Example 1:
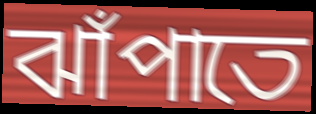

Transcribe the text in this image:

ঝাঁপাতে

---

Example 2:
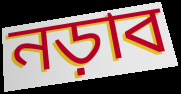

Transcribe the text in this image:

নড়াব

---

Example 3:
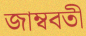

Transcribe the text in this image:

জাম্ববতী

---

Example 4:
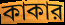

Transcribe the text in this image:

কাকার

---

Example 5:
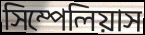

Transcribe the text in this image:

সিম্পেলিয়াস